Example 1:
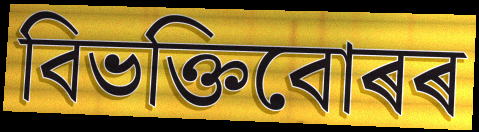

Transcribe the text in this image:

বিভক্তিবোৰৰ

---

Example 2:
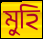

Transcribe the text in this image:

মুহি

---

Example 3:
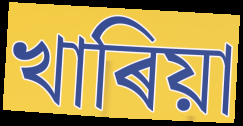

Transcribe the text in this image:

খাৰিয়া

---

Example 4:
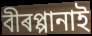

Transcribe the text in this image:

বীৰপ্পানাই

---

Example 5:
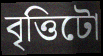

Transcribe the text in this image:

বৃত্তিটো